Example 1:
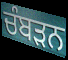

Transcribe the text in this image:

ਚੰਬੜਨ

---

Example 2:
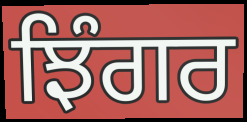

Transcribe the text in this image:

ਝਿੰਗਰ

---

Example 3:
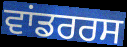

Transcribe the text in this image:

ਵਾਂਡਰਰਸ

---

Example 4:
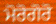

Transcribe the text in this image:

ਮੋਰੋਗੋਰੋ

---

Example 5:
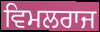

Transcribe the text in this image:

ਵਿਮਲਰਾਜ